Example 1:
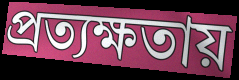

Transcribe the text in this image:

প্রত্যক্ষতায়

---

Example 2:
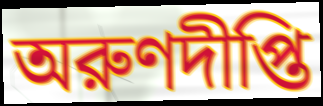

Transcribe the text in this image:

অরুণদীপ্তি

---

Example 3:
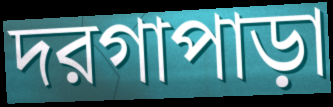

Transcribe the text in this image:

দরগাপাড়া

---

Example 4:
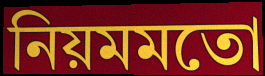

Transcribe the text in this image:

নিয়মমতো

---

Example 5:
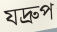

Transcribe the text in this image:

যদ্রুপ